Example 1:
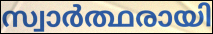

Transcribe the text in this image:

സ്വാർത്ഥരായി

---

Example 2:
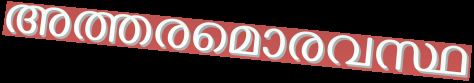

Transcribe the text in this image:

അത്തരമൊരവസ്ഥ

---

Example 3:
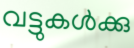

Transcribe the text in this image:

വട്ടുകൾക്കു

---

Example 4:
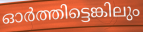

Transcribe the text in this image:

ഓർത്തിട്ടെങ്കിലും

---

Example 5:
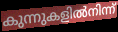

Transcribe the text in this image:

കുന്നുകളിൽനിന്ന്